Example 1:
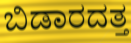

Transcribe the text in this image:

ಬಿಡಾರದತ್ತ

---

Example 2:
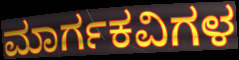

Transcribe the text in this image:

ಮಾರ್ಗಕವಿಗಳ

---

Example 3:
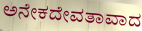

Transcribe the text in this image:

ಅನೇಕದೇವತಾವಾದ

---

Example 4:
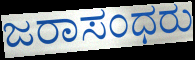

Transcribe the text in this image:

ಜರಾಸಂಧರು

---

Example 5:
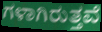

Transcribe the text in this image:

ಗಳಾಗಿರುತ್ತವೆ